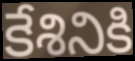
కేశినికి